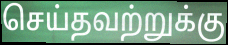
செய்தவற்றுக்கு